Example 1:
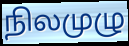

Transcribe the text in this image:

நிலமுழு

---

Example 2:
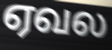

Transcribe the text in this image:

ஏவல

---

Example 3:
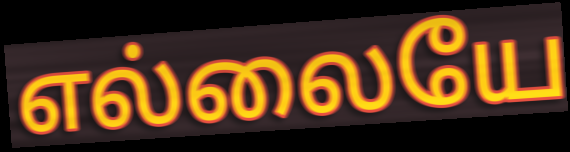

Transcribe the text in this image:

எல்லையே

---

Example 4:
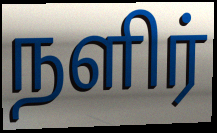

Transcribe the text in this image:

நளிர்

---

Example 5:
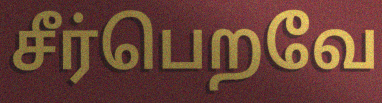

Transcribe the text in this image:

சீர்பெறவே